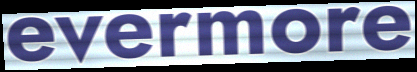
evermore